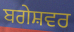
ਬਗੇਸ਼ਵਰ